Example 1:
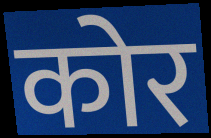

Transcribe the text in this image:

कोर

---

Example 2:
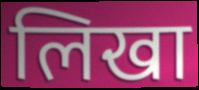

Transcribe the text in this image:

लिखा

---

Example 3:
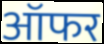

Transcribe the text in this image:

ऑफर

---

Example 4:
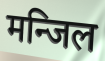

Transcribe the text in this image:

मन्जिल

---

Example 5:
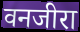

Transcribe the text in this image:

वनजीरा